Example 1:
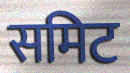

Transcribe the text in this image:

समिट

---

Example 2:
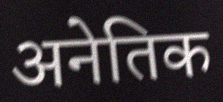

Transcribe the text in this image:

अनेतिक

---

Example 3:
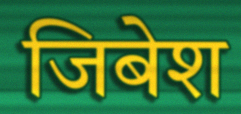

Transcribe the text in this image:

जिबेश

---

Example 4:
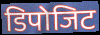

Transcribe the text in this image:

डिपोजिट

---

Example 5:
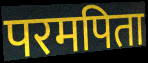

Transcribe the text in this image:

परमपिता